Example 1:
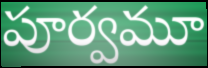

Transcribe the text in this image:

పూర్వమూ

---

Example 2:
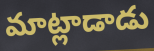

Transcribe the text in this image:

మాట్లాడాడు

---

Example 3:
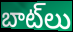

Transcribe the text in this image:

బాట్‌లు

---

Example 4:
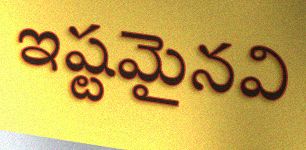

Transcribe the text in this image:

ఇష్టమైనవి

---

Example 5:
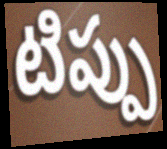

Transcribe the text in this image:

టిప్పు